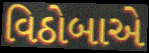
વિઠોબાએ